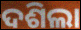
ଦଶିଲା